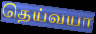
தெய்வயா